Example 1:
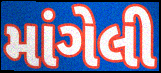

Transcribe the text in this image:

માંગેલી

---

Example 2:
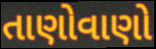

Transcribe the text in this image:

તાણોવાણો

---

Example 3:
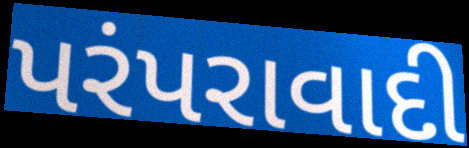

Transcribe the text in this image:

પરંપરાવાદી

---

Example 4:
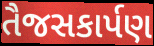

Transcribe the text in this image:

તૈજસકાર્પણ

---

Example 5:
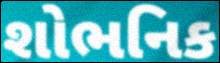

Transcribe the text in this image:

શોભનિક